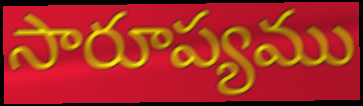
సారూప్యము